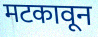
मटकावून